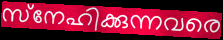
സ്‌നേഹിക്കുന്നവരെ